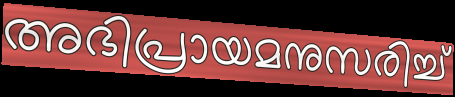
അഭിപ്രായമനുസരിച്ച്